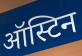
ऑस्टिन